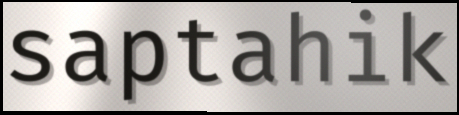
saptahik